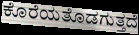
ಕೊರೆಯತೊಡಗುತ್ತದೆ